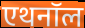
एथनॉल